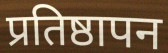
प्रतिष्ठापन